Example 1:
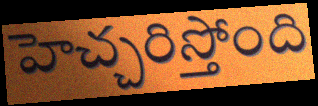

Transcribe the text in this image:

హెచ్చరిస్తోంది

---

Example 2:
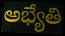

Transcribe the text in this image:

అభ్యేతి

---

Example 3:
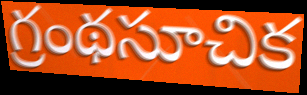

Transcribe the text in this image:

గ్రంథసూచిక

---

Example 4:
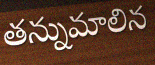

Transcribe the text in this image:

తన్నుమాలిన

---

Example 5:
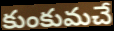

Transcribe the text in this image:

కుంకుమచే